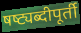
षष्ट्यब्दीपूर्ती